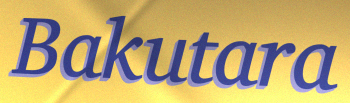
Bakutara